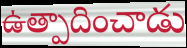
ఉత్పాదించాడు